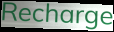
Recharge